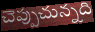
చెప్పుచున్నది